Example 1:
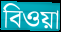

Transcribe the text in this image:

বিওয়া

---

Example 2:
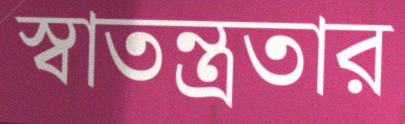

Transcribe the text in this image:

স্বাতন্ত্রতার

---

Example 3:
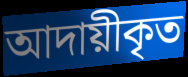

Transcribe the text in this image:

আদায়ীকৃত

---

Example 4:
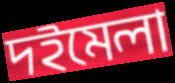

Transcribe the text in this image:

দইমেলা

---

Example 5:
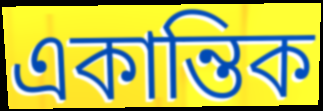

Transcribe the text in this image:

একান্তিক